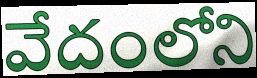
వేదంలోని